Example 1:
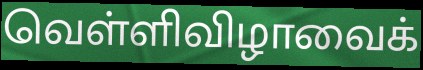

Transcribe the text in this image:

வெள்ளிவிழாவைக்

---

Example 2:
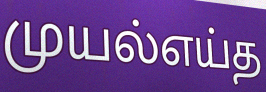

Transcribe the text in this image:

முயல்எய்த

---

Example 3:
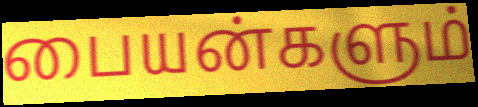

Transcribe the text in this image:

பையன்களும்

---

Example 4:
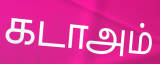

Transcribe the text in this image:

கடாஅம்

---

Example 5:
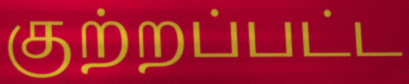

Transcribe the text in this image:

குற்றப்பட்ட